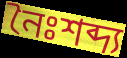
নৈঃশব্দ্য